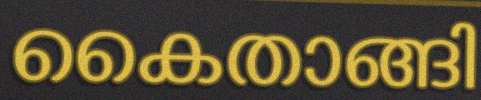
കൈതാങ്ങി